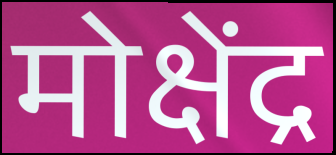
मोक्षेंद्र